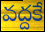
వద్దకే